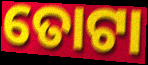
ତୋଟା